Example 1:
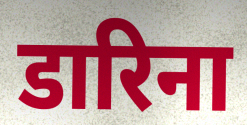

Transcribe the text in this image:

डारिना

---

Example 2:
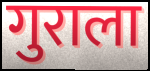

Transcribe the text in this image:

गुराला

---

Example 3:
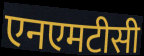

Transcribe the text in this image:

एनएमटीसी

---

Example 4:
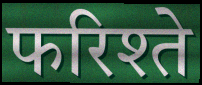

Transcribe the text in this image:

फरिश्ते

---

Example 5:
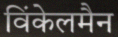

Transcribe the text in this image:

विंकेलमैन